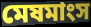
মেষমাংস